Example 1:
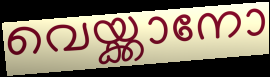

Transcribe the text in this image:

വെയ്ക്കാനോ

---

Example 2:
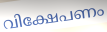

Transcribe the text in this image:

വിക്ഷേപണം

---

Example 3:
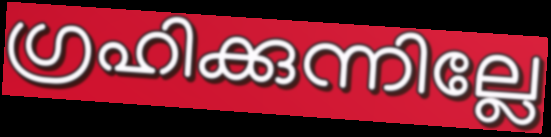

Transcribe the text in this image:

ഗ്രഹിക്കുന്നില്ലേ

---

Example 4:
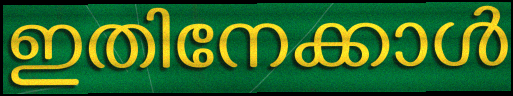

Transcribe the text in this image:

ഇതിനേക്കാൾ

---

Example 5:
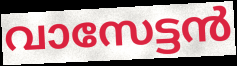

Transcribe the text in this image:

വാസേട്ടൻ